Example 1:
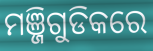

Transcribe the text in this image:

ମଞ୍ଜିଗୁଡିକରେ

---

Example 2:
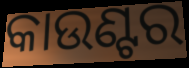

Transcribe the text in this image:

କାଉଣ୍ଟର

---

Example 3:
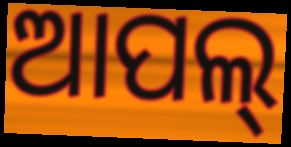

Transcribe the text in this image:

ଆପଲ୍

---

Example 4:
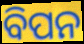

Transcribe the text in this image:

ବିପନ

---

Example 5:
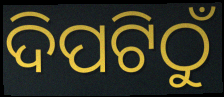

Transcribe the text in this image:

ଦିପଟିଠୁଁ